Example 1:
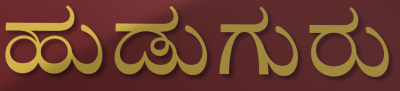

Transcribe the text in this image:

ಹುಡುಗುರು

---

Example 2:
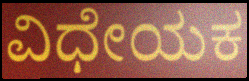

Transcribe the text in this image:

ವಿಧೇಯಕ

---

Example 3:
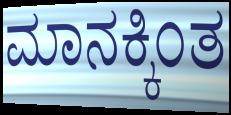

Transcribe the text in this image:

ಮಾನಕ್ಕಿಂತ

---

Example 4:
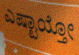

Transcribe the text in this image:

ಎಷ್ಟಾಯ್ತೋ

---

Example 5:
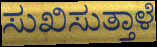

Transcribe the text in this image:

ಸುಖಿಸುತ್ತಾಳೆ